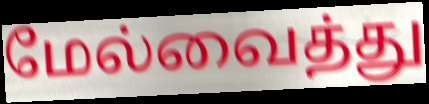
மேல்வைத்து